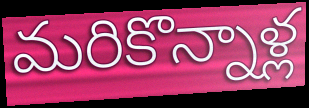
మరికొన్నాళ్ల